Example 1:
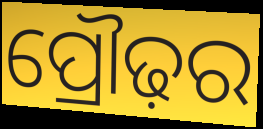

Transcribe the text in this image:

ପ୍ରୌଢ଼ର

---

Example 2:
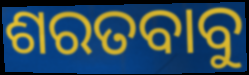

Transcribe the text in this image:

ଶରତବାବୁ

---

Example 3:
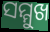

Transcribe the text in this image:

ସମ୍ମୁଖ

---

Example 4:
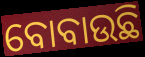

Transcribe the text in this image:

ବୋବାଉଛି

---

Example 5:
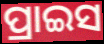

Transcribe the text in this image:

ପ୍ରାଇସ